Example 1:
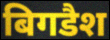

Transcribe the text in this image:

बिगडैश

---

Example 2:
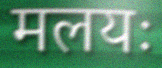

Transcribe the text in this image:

मलयः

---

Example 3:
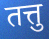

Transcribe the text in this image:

तत्तु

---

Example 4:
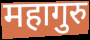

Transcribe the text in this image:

महागुरु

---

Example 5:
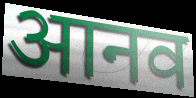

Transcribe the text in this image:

आनव